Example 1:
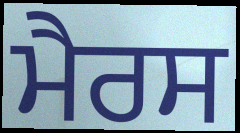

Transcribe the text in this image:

ਮੈਰਸ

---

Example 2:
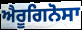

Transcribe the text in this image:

ਐਰੂਗਿਨੋਸਾ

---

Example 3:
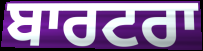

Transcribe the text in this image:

ਬਾਰਟਰਾ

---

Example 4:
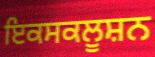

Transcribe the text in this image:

ਇਕਸਕਲੂਸ਼ਨ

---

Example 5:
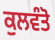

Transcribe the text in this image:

ਕੁਲਵੰਤੋ